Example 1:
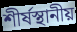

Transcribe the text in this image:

শীর্ষস্থানীয়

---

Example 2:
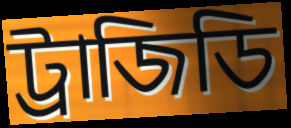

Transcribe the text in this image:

ট্রাজিডি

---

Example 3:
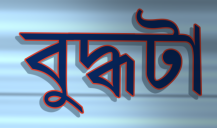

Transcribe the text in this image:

বুদ্ধটা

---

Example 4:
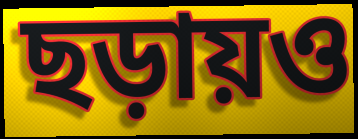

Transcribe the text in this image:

ছড়ায়ও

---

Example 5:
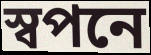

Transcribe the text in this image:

স্বপনে